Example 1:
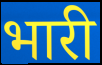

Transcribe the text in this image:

भारी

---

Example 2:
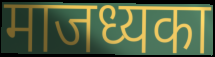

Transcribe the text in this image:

माजध्यका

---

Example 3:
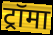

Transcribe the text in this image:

ट्रॉमा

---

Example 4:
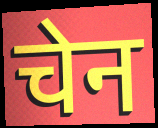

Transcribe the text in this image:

चेन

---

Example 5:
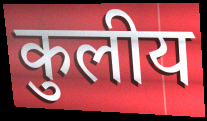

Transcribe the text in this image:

कुलीय